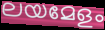
ലയമേളം